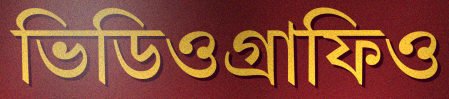
ভিডিওগ্রাফিও